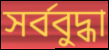
সৰ্ববুদ্ধা